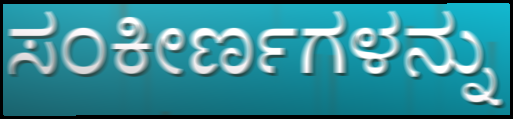
ಸಂಕೀರ್ಣಗಳನ್ನು